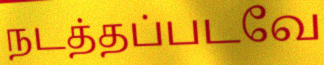
நடத்தப்படவே